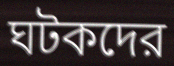
ঘটকদের